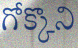
గోక్కొని